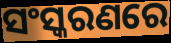
ସଂସ୍କରଣରେ